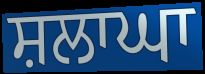
ਸ਼ਲਾਘਾ